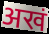
अखं